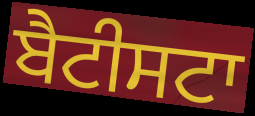
ਬੈਟੀਸਟਾ